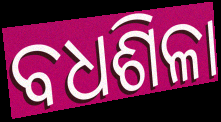
ବଧଶିଳା